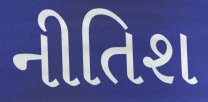
નીતિશ